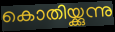
കൊതിയ്ക്കുന്നു